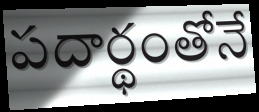
పదార్థంతోనే